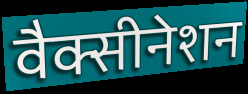
वैक्सीनेशन